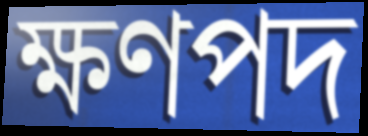
ক্ষণপদ